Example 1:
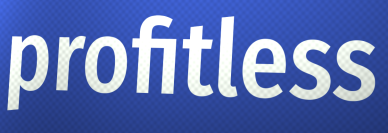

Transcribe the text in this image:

profitless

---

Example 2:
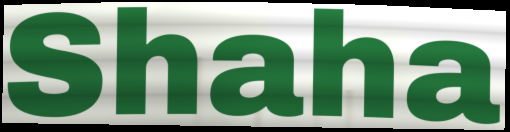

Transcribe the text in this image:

Shaha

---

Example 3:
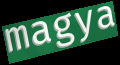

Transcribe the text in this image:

magya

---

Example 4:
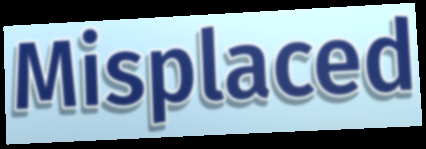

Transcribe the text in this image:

Misplaced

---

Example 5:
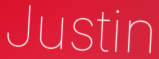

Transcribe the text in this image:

Justin